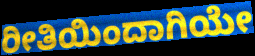
ರೀತಿಯಿಂದಾಗಿಯೇ